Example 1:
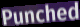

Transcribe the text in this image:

Punched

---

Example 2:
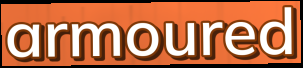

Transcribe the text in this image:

armoured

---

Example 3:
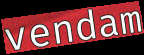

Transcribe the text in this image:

vendam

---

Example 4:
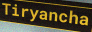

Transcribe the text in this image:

Tiryancha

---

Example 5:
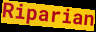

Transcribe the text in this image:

Riparian